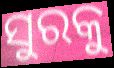
ସୁରକୁ